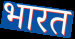
भारत